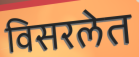
विसरलेत